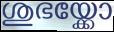
ശുഭയ്ക്കോ